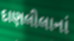
દાણલીલાનાં